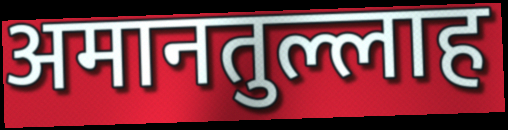
अमानतुल्लाह